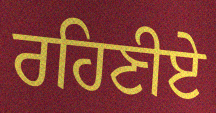
ਰਹਿਣੀਏ